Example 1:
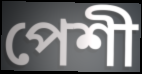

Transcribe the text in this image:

পেশী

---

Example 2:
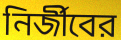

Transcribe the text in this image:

নির্জীবের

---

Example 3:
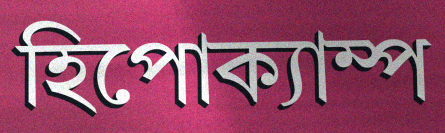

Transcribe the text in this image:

হিপোক্যাম্প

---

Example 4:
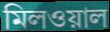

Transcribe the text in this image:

মিলওয়াল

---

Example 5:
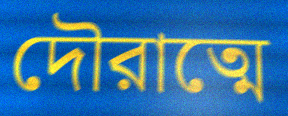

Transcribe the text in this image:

দৌরাত্মে